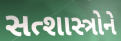
સત્શાસ્ત્રોને